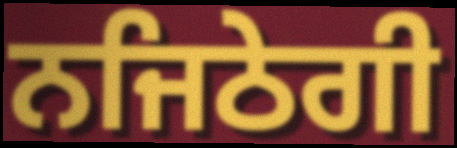
ਨਜਿਠੇਗੀ